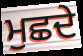
ਮੁਛਦੇ